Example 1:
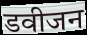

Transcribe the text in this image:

डवीजन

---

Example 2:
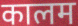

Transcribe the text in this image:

कालम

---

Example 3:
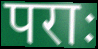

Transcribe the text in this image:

पराः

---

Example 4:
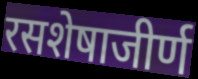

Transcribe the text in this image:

रसशेषाजीर्ण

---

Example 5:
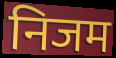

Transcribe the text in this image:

निजम